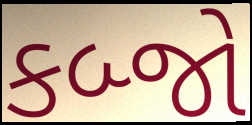
કબ્જો